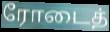
ரோடைத்